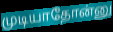
முடியாதோன்னு